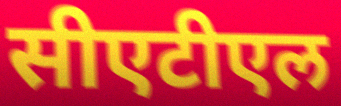
सीएटीएल